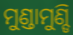
ମୁଣ୍ଡାମୁଣ୍ଡି